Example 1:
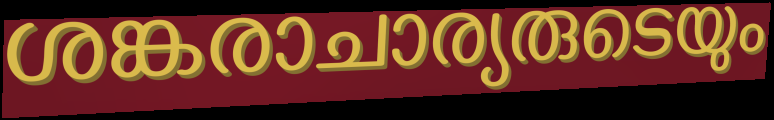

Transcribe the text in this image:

ശങ്കരാചാര്യരുടെയും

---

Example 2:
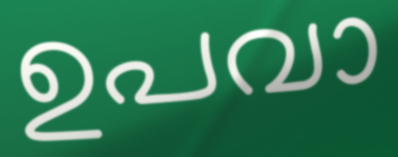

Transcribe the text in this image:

ഉപവാ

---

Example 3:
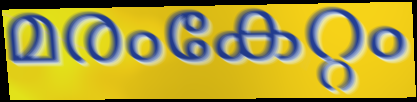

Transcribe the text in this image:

മരംകേറ്റം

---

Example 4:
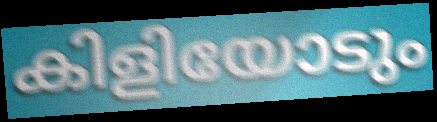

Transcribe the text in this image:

കിളിയോടും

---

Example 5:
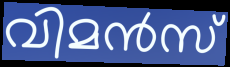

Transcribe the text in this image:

വിമൻസ്